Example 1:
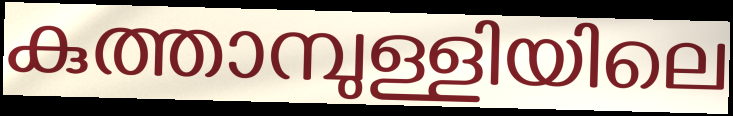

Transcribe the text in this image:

കുത്താമ്പുള്ളിയിലെ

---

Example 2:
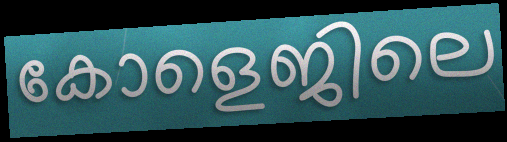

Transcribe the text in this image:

കോളെജിലെ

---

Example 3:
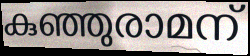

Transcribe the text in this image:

കുഞ്ഞുരാമന്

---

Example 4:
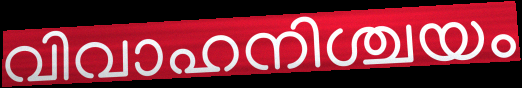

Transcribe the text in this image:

വിവാഹനിശ്ചയം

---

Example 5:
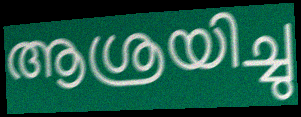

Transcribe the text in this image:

ആശ്രയിച്ചു